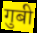
गुबी